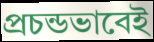
প্রচন্ডভাবেই